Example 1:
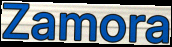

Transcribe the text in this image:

Zamora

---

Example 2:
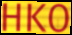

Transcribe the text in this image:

HKO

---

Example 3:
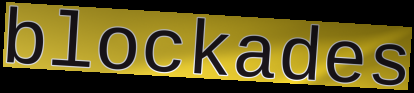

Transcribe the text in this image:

blockades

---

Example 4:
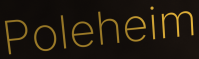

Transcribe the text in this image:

Poleheim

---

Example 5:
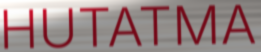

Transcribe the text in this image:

HUTATMA